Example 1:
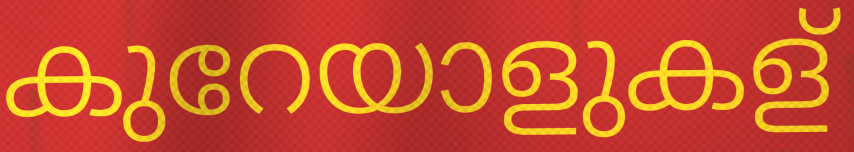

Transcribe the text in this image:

കുറേയാളുകള്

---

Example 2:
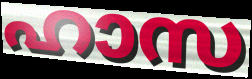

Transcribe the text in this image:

ഹാസ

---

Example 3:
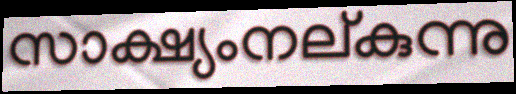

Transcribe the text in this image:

സാക്ഷ്യംനല്കുന്നു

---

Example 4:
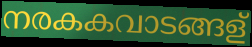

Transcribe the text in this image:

നരകകവാടങ്ങള്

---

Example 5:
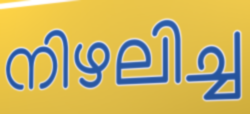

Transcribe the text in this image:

നിഴലിച്ച